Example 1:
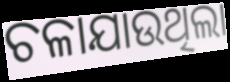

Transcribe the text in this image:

ଚଳାଯାଉଥିଲା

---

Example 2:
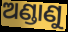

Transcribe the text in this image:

ଅଣ୍ଡାଣୁ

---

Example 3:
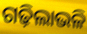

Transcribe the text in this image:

ଗଢ଼ିଲାଭଳି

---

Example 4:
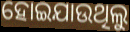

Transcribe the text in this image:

ହୋଇଯାଉଥିଲୁ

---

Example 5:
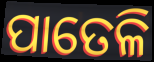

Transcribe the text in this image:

ପାତେଳି